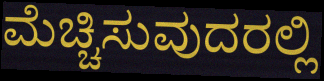
ಮೆಚ್ಚಿಸುವುದರಲ್ಲಿ